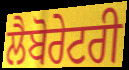
ਲੈਬੋਰੇਟਰੀ